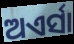
ଅଏର୍ସା